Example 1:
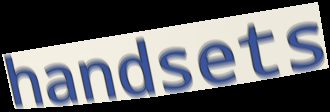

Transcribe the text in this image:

handsets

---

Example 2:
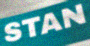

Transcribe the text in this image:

STAN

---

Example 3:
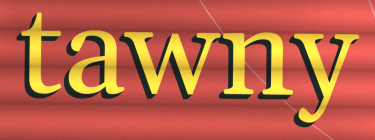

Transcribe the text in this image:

tawny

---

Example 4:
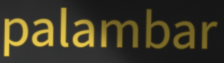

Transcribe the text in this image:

palambar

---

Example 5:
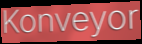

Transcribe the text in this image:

Konveyor